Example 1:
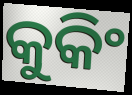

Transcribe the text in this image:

କୁକିଂ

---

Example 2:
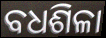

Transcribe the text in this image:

ବଧଶିଳା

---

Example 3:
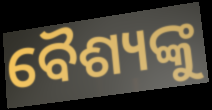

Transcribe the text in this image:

ବୈଶ୍ୟଙ୍କୁ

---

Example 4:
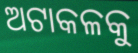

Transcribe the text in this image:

ଅଟାକଳକୁ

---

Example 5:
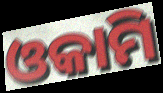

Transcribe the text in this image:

ଓକାମି